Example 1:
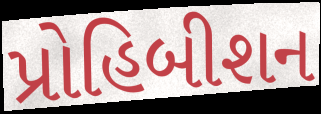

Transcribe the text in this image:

પ્રોહિબીશન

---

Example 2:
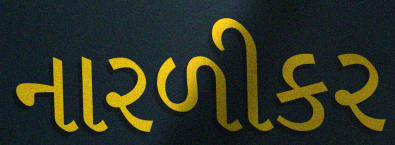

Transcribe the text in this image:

નારળીકર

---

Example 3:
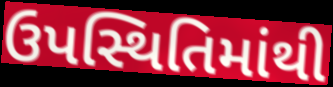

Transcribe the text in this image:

ઉપસ્થિતિમાંથી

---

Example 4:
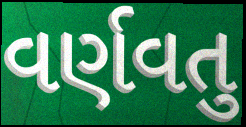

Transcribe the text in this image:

વર્ણવતુ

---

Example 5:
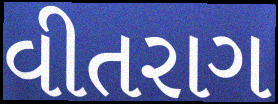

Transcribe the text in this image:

વીતરાગ